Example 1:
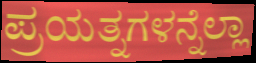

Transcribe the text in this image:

ಪ್ರಯತ್ನಗಳನ್ನೆಲ್ಲಾ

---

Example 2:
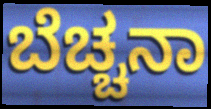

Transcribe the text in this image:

ಬೆಚ್ಚನಾ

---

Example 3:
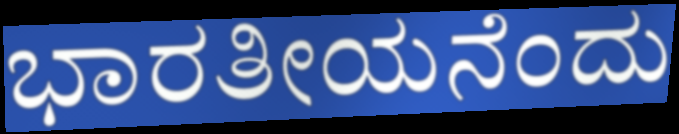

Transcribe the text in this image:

ಭಾರತೀಯನೆಂದು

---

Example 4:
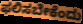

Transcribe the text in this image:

ಫಲಿಸಬೇಕೆಂದು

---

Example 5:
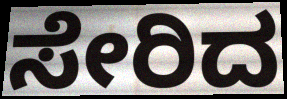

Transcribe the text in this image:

ಸೇರಿದ